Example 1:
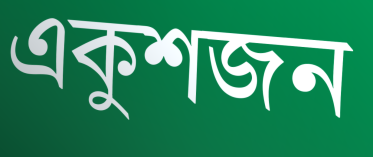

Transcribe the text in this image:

একুশজন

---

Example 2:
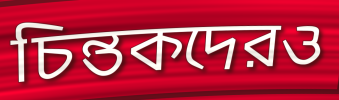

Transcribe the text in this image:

চিন্তকদেরও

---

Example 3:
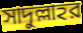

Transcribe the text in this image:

সাদুল্লাহর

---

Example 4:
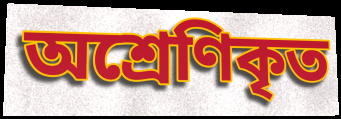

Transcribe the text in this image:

অশ্রেণিকৃত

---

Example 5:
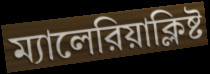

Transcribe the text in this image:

ম্যালেরিয়াক্লিষ্ট